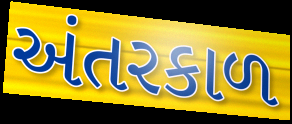
અંતરકાળ